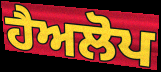
ਹੈਅਲੋਪ